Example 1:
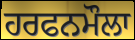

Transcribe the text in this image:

ਹਰਫਨਮੌਲਾ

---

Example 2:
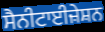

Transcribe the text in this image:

ਸੈਨੀਟਾਈਜ਼ੇਸ਼ਨ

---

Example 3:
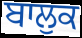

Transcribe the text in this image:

ਬਾਲੁਕ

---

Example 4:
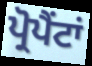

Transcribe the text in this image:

ਪ੍ਰੋਪੈਂਟਾਂ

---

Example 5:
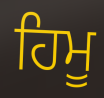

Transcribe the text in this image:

ਹਿਮੂ